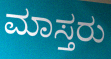
ಮಾಸ್ತರು